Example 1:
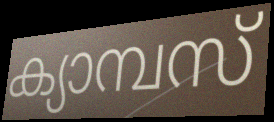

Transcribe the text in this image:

ക്യാമ്പസ്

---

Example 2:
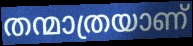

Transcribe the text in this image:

തന്മാത്രയാണ്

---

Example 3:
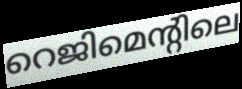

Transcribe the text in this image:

റെജിമെന്റിലെ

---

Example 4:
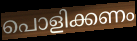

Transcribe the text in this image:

പൊളിക്കണം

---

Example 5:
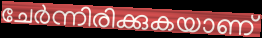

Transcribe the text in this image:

ചേർന്നിരിക്കുകയാണ്